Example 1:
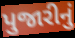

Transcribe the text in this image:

પુજારીનું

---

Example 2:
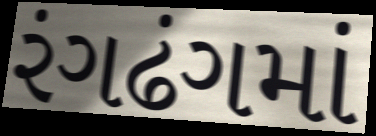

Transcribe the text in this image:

રંગઢંગમાં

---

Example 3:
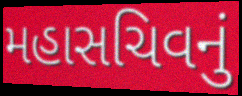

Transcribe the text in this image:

મહાસચિવનું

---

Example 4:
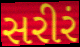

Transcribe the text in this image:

સરીરં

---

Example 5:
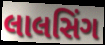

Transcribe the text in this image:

લાલસિંગ